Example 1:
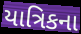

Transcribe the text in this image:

યાત્રિકના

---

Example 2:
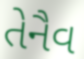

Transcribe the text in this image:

તેનૈવ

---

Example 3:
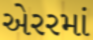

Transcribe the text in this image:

એરરમાં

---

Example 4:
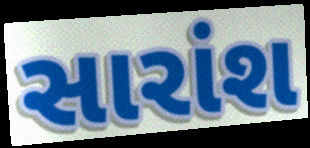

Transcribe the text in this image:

સારાંશ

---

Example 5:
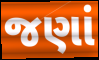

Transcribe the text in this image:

જણાં